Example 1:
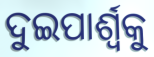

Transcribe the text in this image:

ଦୁଇପାର୍ଶ୍ବକୁ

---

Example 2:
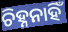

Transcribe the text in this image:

ଚିହ୍ନନାହିଁ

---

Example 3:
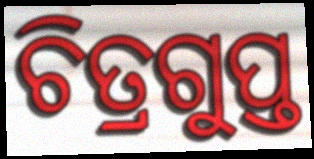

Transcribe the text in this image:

ଚିତ୍ରଗୁପ୍ତ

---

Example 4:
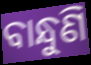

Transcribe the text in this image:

ବାନ୍ଧୁଣି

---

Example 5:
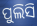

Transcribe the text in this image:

ପୁଲିସି